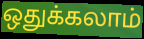
ஒதுக்கலாம்